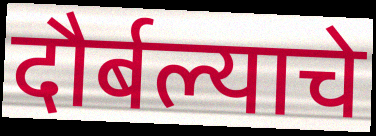
दौर्बल्याचे